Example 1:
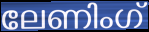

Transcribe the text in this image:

ലേണിംഗ്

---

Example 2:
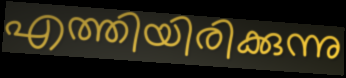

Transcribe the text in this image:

എത്തിയിരിക്കുന്നു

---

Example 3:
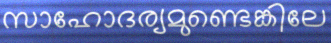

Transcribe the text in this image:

സാഹോദര്യമുണ്ടെങ്കിലേ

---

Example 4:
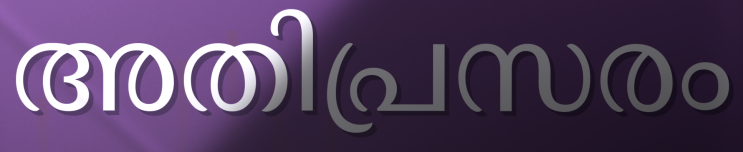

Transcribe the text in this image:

അതിപ്രസരം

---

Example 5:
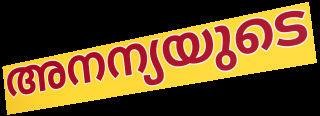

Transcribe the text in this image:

അനന്യയുടെ